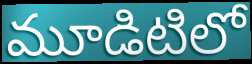
మూడిటిలో